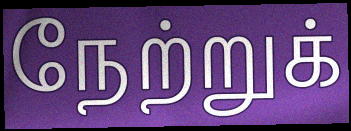
நேற்றுக்